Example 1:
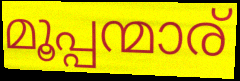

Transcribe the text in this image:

മൂപ്പന്മാര്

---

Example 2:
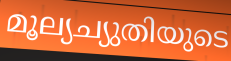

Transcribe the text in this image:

മൂല്യച്യുതിയുടെ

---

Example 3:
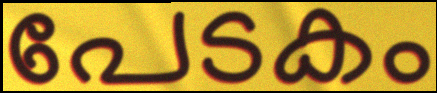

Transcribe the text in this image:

പേടകം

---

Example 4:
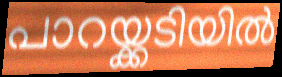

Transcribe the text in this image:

പാറയ്ക്കടിയിൽ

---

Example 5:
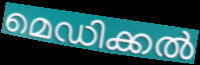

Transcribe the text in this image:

മെഡിക്കൽ